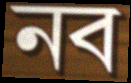
নব